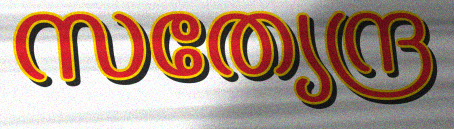
സത്യേന്ദ്ര